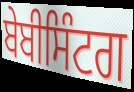
ਬੇਬੀਸਿੰਟਗ